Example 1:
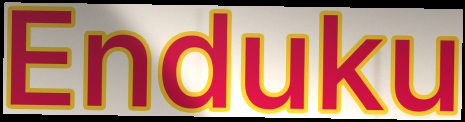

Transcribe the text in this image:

Enduku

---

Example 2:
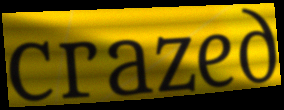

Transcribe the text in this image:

crazed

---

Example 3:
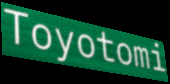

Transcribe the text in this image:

Toyotomi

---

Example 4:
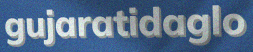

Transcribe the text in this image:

gujaratidaglo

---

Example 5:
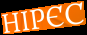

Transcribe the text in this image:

HIPEC